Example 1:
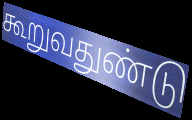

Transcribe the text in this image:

கூறுவதுண்டு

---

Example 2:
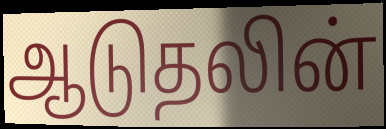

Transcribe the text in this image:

ஆடுதலின்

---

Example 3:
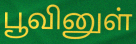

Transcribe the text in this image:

பூவினுள்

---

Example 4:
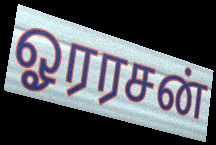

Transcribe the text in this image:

ஓரரசன்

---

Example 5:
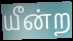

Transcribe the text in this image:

யீன்ற